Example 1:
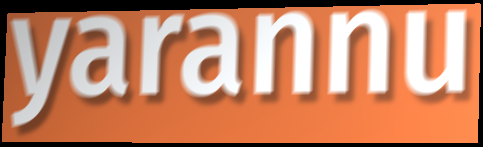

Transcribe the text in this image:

yarannu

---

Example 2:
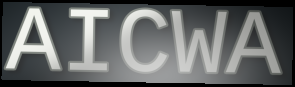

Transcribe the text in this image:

AICWA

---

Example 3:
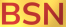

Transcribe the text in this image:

BSN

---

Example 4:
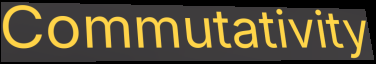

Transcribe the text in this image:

Commutativity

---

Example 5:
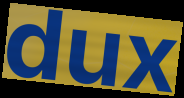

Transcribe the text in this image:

dux